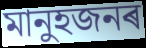
মানুহজনৰ